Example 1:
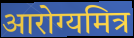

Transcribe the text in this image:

आरोग्यमित्र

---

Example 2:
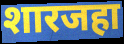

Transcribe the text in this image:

शारजहा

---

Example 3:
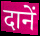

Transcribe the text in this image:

दानें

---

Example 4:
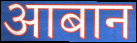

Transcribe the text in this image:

आबान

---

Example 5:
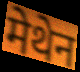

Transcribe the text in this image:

मेथेन